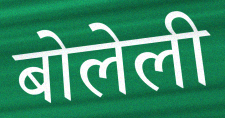
बोलेली